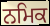
ਨਮਿਕ